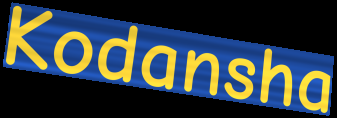
Kodansha